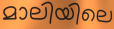
മാലിയിലെ